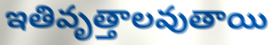
ఇతివృత్తాలవుతాయి